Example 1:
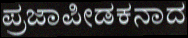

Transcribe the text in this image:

ಪ್ರಜಾಪೀಡಕನಾದ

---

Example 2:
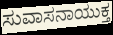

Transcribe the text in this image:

ಸುವಾಸನಾಯುಕ್ತ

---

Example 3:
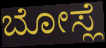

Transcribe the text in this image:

ಬೋಸ್ಲೆ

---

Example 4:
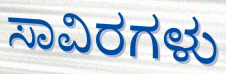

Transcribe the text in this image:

ಸಾವಿರಗಳು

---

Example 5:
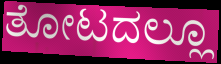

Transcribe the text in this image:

ತೋಟದಲ್ಲೂ